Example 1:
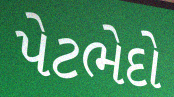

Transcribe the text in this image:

પેટભેદો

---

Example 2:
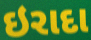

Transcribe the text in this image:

ઇરાદા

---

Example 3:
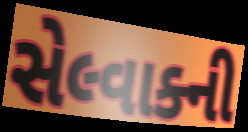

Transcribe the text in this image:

સેલ્વાક્ની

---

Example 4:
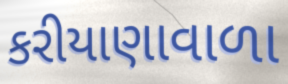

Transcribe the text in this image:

કરીયાણાવાળા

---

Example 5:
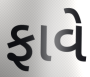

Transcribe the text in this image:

ફાવે